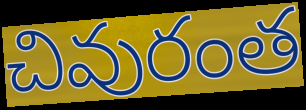
చివురంత